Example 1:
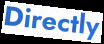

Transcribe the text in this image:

Directly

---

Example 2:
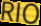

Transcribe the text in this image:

RIO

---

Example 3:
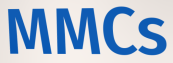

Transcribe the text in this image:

MMCs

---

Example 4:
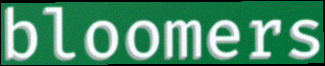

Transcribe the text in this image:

bloomers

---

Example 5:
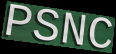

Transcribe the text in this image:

PSNC